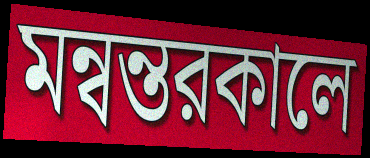
মন্বন্তরকালে